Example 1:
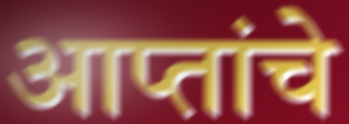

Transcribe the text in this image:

आप्तांचे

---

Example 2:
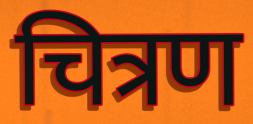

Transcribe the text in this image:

चित्रण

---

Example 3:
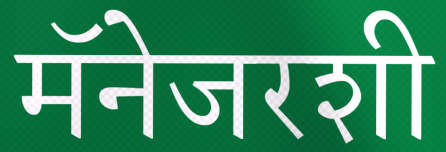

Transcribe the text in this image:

मॅनेजरशी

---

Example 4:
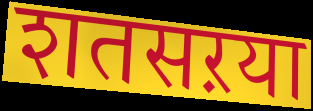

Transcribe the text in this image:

शतसऱया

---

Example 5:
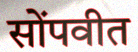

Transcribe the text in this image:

सोंपवीत